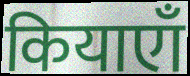
कियाएाँ